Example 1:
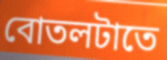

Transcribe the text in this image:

বোতলটাতে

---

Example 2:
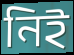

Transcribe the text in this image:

নিই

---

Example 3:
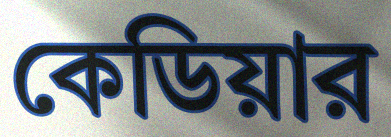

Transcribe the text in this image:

কেডিয়ার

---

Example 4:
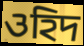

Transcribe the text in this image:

ওহিদ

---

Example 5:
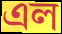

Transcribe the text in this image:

এল